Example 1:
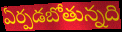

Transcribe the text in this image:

ఏర్పడబోతున్నది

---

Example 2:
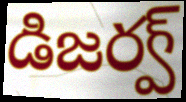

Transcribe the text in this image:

డిజర్వ్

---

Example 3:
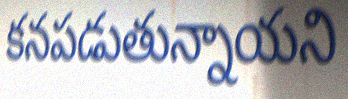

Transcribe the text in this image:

కనపడుతున్నాయని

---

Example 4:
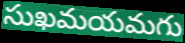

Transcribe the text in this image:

సుఖమయమగు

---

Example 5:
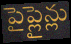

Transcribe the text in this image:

పైప్లైన్లు